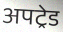
अपट्रेड